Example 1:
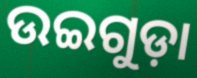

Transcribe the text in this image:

ଉଇଗୁଡ଼ା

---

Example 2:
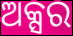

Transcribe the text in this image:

ଅକ୍ସର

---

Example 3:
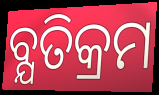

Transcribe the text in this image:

ବ୍ଯତିକ୍ରମ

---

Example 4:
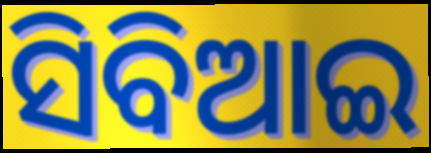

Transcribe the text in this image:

ସିବିଆଇ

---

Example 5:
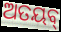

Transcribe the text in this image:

ଅତୟବ୍